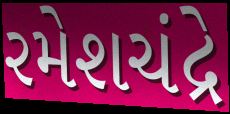
રમેશચંદ્રે